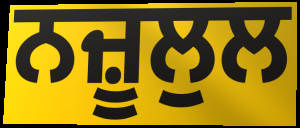
ਨਜ਼ੂਲੁਲ